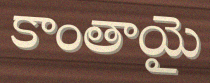
కాంతాయై